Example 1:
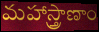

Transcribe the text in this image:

మహాస్త్రాణాం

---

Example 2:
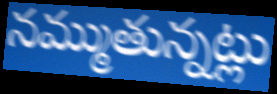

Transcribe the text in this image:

నమ్ముతున్నట్లు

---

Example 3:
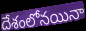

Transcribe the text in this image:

దేశంలోనయినా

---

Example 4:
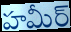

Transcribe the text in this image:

హమీర్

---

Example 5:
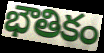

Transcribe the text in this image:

భౌతికం